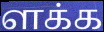
ளக்க